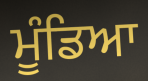
ਮੂੰਡਿਆ